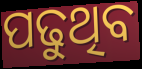
ପଢୁଥିବ